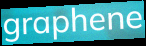
graphene